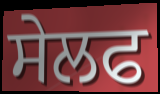
ਸੇਲਫ